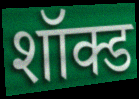
शॉक्ड